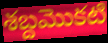
శబ్దమొకటి